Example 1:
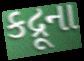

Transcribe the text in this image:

કદ્રૂના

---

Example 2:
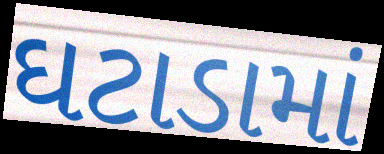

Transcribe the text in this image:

ઘટાડામાં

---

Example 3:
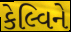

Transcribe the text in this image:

કેલ્વિને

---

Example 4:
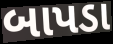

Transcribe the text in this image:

બાપડા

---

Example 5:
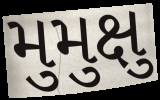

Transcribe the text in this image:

મુમુક્ષુ